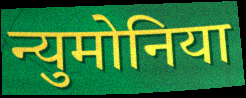
न्युमोनिया